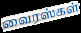
வைரஸ்கள்